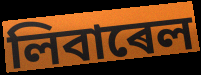
লিবাৰেল